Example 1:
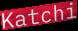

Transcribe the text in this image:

Katchi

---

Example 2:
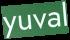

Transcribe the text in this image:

yuval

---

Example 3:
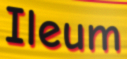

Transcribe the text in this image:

Ileum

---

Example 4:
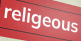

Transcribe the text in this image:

religeous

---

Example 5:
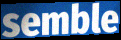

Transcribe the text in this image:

semble